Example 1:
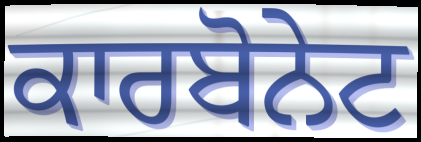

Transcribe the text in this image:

ਕਾਰਬੋਨੇਟ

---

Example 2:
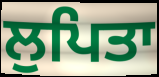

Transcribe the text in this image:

ਲੁਪਿਤਾ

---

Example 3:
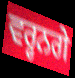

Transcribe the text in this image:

ਵਰ੍ਹਨਗੇ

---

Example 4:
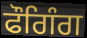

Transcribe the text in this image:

ਫੌਗਿੰਗ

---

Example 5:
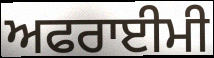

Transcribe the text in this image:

ਅਫਰਾਈਮੀ